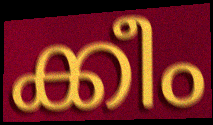
ക്കീം